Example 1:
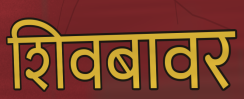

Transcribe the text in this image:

शिवबावर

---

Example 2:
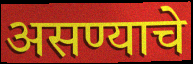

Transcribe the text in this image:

असण्याचे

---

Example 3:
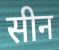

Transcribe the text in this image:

सीन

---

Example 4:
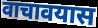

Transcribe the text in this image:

वाचावयास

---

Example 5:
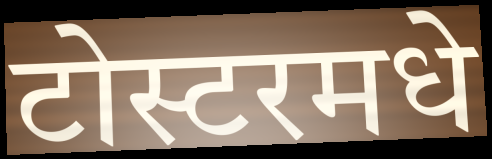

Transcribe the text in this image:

टोस्टरमधे